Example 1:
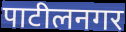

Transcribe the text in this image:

पाटीलनगर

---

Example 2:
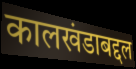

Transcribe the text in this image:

कालखंडाबद्दल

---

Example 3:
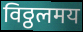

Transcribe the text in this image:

विठ्ठलमय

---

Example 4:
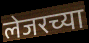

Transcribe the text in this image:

लेजरच्या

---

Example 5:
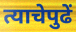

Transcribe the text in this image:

त्याचेपुढें